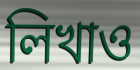
লিখাও